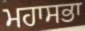
ਮਹਾਸਭਾ